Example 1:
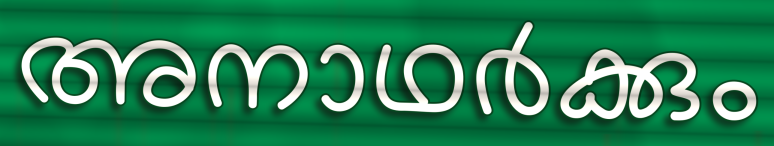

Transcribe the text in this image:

അനാഥർക്കും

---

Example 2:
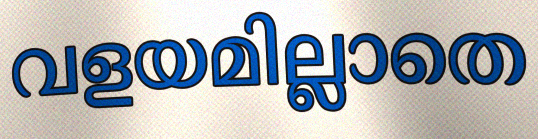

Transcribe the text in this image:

വളയമില്ലാതെ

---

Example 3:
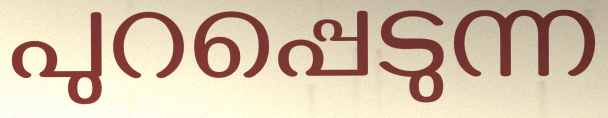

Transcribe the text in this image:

പുറപ്പെടുന്ന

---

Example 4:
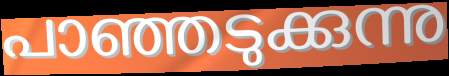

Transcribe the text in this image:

പാഞ്ഞടുക്കുന്നു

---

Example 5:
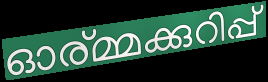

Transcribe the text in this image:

ഓര്മ്മക്കുറിപ്പ്